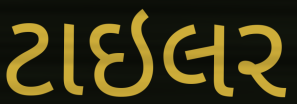
ટાઇલર